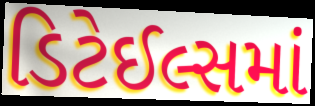
ડિટેઈલ્સમાં